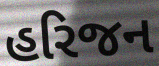
હરિજન